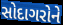
સોદાગરોને